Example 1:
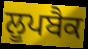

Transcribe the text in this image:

ਲੂਪਬੈਕ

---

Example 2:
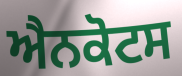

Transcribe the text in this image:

ਐਨਕੋਟਸ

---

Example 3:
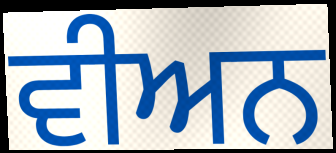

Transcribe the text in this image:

ਵੀਅਨ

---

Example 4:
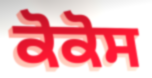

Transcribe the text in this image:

ਕੋਕੋਸ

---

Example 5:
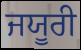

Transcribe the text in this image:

ਜਯੂਰੀ